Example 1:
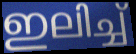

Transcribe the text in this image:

ഇലിച്ച്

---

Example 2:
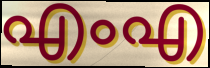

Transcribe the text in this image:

എംഎ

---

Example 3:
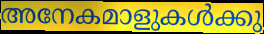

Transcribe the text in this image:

അനേകമാളുകൾക്കു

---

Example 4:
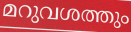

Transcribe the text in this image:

മറുവശത്തും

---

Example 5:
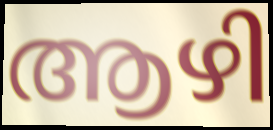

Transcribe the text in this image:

ആഴി